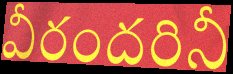
వీరందరినీ